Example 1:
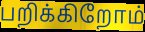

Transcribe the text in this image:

பறிக்கிறோம்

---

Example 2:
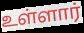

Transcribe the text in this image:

உள்ளார்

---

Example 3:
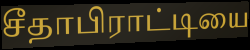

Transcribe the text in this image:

சீதாபிராட்டியை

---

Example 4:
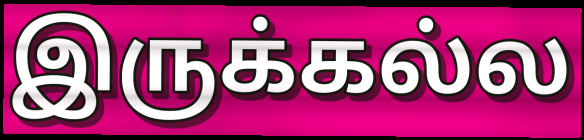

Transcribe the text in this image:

இருக்கல்ல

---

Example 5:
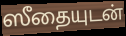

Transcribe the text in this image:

ஸீதையுடன்